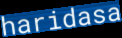
haridasa